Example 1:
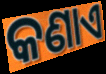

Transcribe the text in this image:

କଣାଏ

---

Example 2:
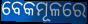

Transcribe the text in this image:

ବେକମୂଳରେ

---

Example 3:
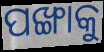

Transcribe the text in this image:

ପଙ୍ଖାକୁ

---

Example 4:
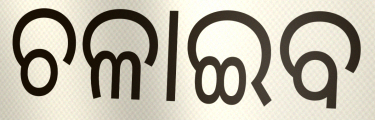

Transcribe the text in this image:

ଚଳାଇବ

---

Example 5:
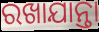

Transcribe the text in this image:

ରଖାଯାନ୍ତା